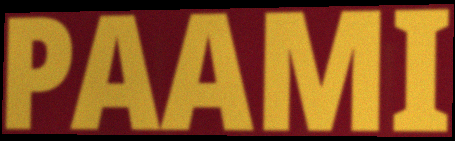
PAAMI